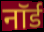
नॉर्ड